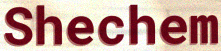
Shechem